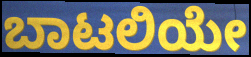
ಬಾಟಲಿಯೇ